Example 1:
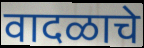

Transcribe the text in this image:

वादळाचे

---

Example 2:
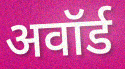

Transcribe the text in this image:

अवॉर्ड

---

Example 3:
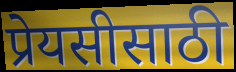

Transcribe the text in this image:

प्रेयसीसाठी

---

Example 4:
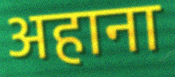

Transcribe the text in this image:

अहाना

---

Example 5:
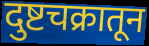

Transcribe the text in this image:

दुष्टचक्रातून